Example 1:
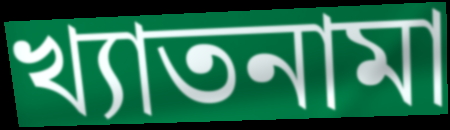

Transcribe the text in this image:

খ্যাতনামা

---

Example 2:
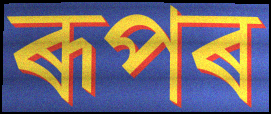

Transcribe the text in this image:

ৰূপৰ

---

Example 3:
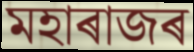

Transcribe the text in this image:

মহাৰাজৰ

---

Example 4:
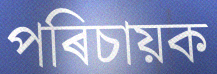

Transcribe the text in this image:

পৰিচায়ক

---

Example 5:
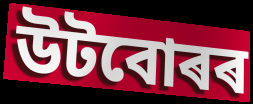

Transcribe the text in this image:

উটবোৰৰ